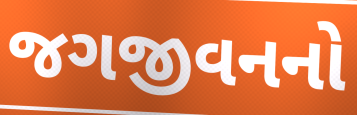
જગજીવનનો